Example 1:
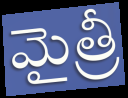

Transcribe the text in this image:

మైత్రీ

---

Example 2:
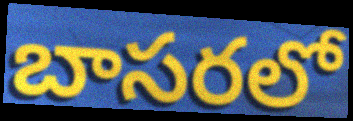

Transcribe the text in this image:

బాసరలో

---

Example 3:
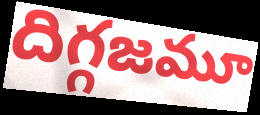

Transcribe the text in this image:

దిగ్గజమూ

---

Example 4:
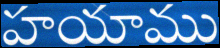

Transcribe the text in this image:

హయాము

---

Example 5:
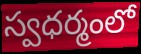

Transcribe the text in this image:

స్వధర్మంలో